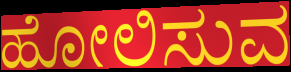
ಹೋಲಿಸುವ